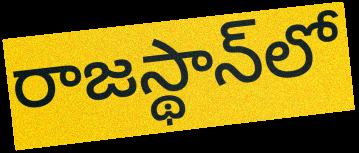
రాజస్థాన్‌లో